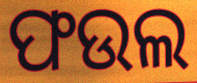
ଫଉଲ